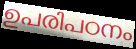
ഉപരിപഠനം